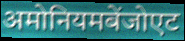
अमोनियमबेंजोएट